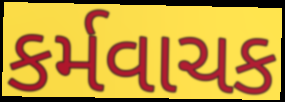
કર્મવાચક